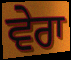
ਵੇਰਾ